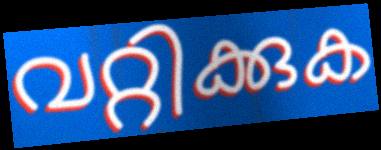
വറ്റിക്കുക